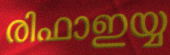
രിഫാഇയ്യ